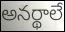
అనర్థాలే